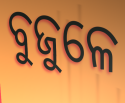
ବୁଜୁଳେ